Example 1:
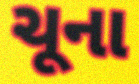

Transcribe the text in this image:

ચૂના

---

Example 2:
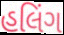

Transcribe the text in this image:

હલિંગ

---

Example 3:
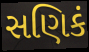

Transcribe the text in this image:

સણિકં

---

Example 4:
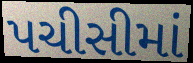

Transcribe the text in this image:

પચીસીમાં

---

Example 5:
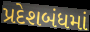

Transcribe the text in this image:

પ્રદેશબંધમાં